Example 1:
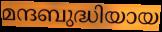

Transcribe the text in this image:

മന്ദബുദ്ധിയായ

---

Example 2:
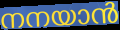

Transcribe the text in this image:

നനയാൻ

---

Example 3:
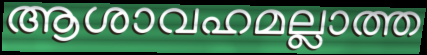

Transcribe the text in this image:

ആശാവഹമല്ലാത്ത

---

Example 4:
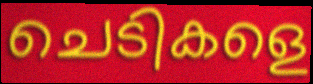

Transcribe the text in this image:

ചെടികളെ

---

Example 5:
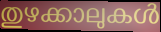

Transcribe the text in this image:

തുഴക്കാലുകൾ